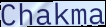
Chakma